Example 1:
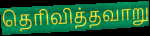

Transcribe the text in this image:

தெரிவித்தவாறு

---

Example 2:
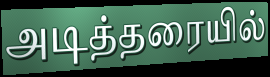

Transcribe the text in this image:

அடித்தரையில்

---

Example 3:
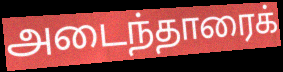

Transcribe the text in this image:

அடைந்தாரைக்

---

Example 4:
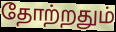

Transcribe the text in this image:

தோற்றதும்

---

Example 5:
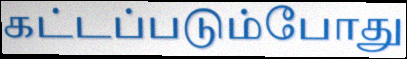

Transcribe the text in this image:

கட்டப்படும்போது